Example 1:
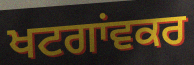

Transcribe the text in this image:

ਖਟਗਾਂਵਕਰ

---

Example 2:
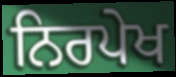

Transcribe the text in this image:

ਨਿਰਪੇਖ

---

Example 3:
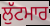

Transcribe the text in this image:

ਲੁੱਟਮਾਰ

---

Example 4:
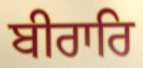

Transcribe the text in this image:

ਬੀਰਾਰਿ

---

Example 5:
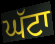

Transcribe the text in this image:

ਘੱਟਾ